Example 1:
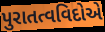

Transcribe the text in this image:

પુરાતત્વવિદોએ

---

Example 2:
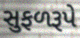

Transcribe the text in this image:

સુફળરૂપે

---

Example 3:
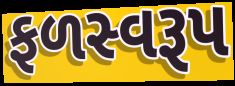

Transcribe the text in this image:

ફળસ્વરૂપ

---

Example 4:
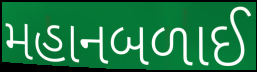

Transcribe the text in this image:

મહાનબળાઈ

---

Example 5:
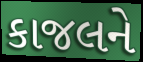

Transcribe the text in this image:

કાજલને